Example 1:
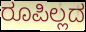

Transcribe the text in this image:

ರೂಪಿಲ್ಲದ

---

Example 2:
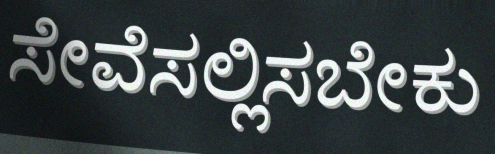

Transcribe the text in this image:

ಸೇವೆಸಲ್ಲಿಸಬೇಕು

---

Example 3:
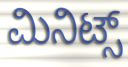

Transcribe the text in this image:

ಮಿನಿಟ್ಸ್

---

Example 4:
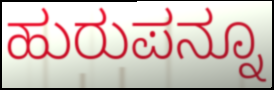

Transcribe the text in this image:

ಹುರುಪನ್ನೂ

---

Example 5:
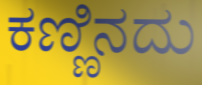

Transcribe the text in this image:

ಕಣ್ಣಿನದು